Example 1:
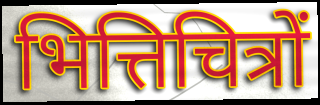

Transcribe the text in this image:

भित्तिचित्रों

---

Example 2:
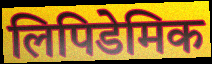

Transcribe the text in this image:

लिपिडेमिक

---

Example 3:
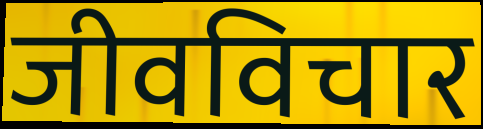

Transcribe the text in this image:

जीवविचार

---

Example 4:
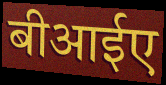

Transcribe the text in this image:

बीआईए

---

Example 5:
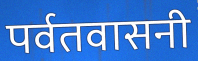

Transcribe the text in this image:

पर्वतवासनी